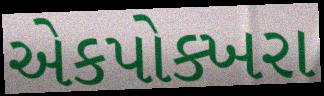
એકપોક્ખરા